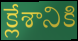
క్లేశానికి